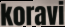
koravi